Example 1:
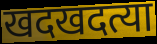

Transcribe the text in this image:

खदखदत्या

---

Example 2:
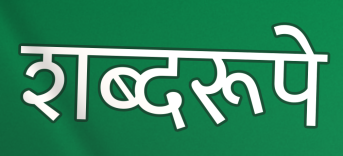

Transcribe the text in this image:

शब्दरूपे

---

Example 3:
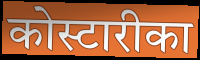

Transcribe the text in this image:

कोस्टारीका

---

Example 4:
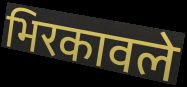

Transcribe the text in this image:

भिरकावले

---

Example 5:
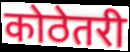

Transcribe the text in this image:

कोठेतरी